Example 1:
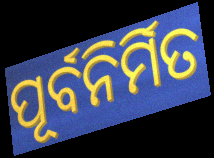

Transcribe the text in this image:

ପୂର୍ବନିର୍ମିତ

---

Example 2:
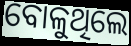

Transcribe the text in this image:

ବୋଳୁଥିଲେ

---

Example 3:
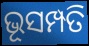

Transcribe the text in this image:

ଭୂସମ୍ପତି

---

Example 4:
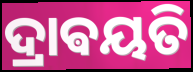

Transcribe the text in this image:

ଦ୍ରାଵୟତି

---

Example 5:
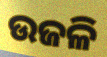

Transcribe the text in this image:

ଉଜଳି